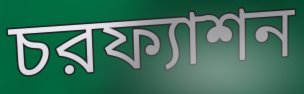
চরফ্যাশন